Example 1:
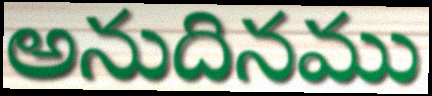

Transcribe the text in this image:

అనుదినము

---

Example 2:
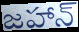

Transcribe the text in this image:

జహాన్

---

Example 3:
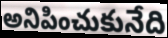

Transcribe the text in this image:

అనిపించుకునేది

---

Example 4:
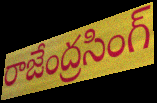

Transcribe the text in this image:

రాజేంద్రసింగ్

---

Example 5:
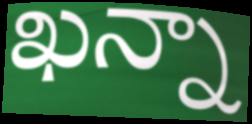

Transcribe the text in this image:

ఖన్నా